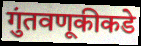
गुंतवणूकीकडे